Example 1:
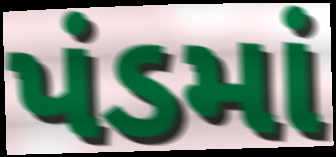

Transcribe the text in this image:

પંડમાં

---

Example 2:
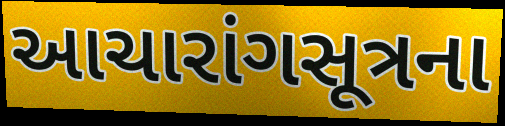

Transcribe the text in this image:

આચારાંગસૂત્રના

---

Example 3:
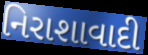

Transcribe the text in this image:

નિરાશાવાદી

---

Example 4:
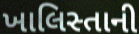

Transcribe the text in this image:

ખાલિસ્તાની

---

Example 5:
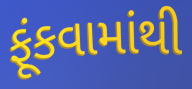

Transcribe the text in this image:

ફૂંકવામાંથી